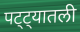
पट्ट्यातली